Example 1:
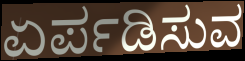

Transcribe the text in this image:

ಏರ್ಪಡಿಸುವ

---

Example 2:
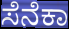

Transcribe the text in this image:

ಸೆನೆಕಾ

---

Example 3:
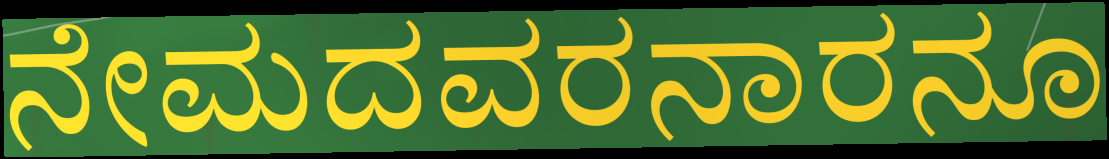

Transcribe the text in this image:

ನೇಮದವರನಾರನೂ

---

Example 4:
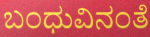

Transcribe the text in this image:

ಬಂಧುವಿನಂತೆ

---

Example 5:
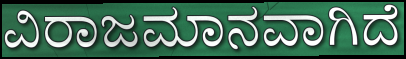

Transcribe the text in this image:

ವಿರಾಜಮಾನವಾಗಿದೆ